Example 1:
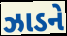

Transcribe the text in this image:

ઝાડને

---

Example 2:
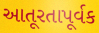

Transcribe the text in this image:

આતૂરતાપૂર્વક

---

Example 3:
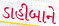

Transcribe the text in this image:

ડાહીબાને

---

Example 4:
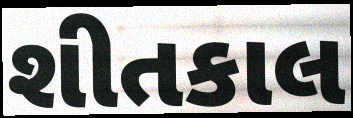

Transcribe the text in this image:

શીતકાલ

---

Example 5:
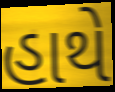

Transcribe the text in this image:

હાથે